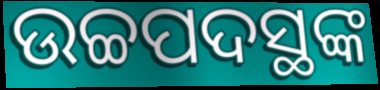
ଉଚ୍ଚପଦସ୍ଥଙ୍କ